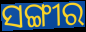
ସଙ୍ଗୀର